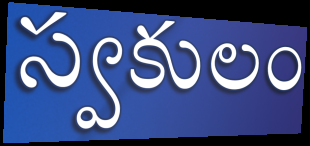
స్వకులం